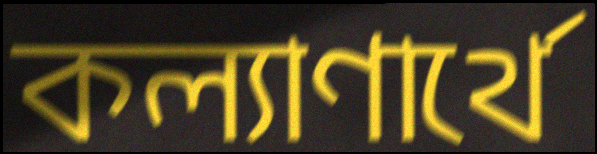
কল্যাণার্থে